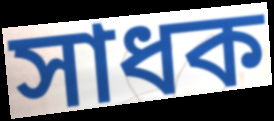
সাধক